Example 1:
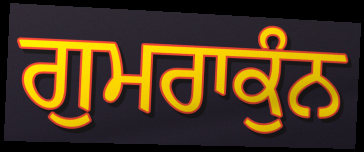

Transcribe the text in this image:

ਗੁਮਰਾਕੁੰਨ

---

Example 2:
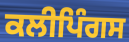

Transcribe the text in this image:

ਕਲੀਪਿੰਗਸ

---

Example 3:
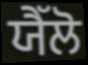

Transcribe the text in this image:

ਯੈੱਲੋ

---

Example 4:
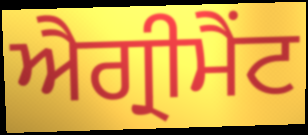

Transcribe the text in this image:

ਐਗ੍ਰੀਮੈਂਟ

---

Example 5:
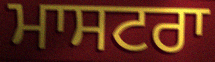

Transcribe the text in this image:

ਮਾਸਟਰਾ